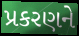
પ્રકરણને